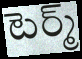
టెర్మ్